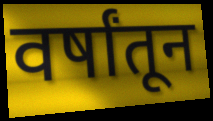
वर्षांतून